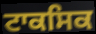
ਟਾਕਸਿਕ